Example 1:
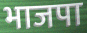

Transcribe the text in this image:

भाजपा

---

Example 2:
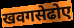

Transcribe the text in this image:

खवगसेढोए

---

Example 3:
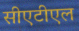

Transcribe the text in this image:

सीएटीएल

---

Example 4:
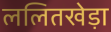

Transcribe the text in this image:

ललितखेड़ा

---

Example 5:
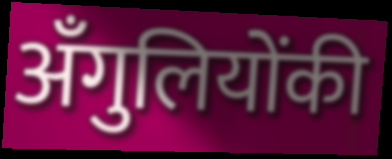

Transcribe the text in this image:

अँगुलियोंकी